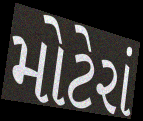
મોટેરાં